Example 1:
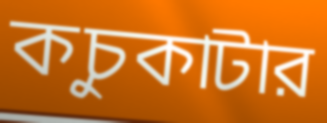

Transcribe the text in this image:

কচুকাটার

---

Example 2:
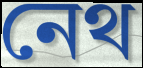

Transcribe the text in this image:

নেথ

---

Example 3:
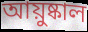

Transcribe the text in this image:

আয়ুষ্কাল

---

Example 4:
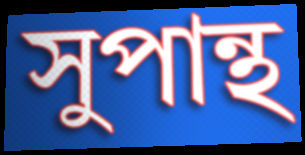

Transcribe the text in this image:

সুপান্থ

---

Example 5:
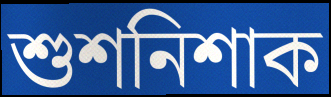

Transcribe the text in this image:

শুশনিশাক